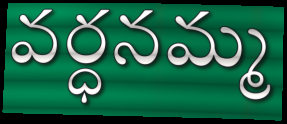
వర్ధనమ్మ